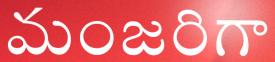
మంజరిగా